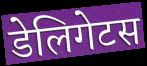
डेलिगेटस